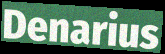
Denarius